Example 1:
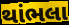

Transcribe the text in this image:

થાંભલા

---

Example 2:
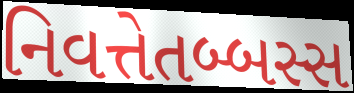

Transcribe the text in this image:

નિવત્તેતબ્બસ્સ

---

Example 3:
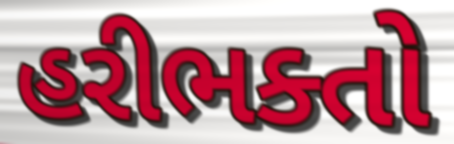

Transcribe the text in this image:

હરીભક્તો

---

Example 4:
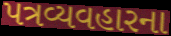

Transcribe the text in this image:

પત્રવ્યવહારના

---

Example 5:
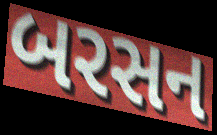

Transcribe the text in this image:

બરસન